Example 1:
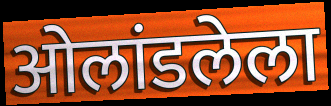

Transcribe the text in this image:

ओलांडलेला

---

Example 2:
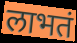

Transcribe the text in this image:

लाभतं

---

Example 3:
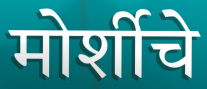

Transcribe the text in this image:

मोर्शीचे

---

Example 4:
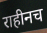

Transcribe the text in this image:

राहीनच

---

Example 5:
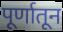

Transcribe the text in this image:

पूर्णातून